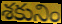
శకునిం